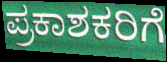
ಪ್ರಕಾಶಕರಿಗೆ